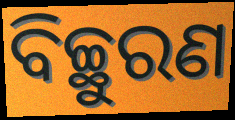
ବିଚ୍ଛୁରଣ